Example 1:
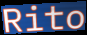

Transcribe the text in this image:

Rito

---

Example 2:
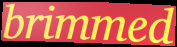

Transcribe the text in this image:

brimmed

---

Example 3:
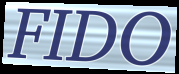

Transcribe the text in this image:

FIDO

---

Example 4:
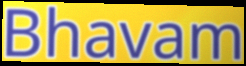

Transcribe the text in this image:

Bhavam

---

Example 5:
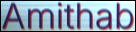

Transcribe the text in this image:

Amithab